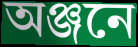
অঞ্জনে